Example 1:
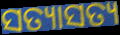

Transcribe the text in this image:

ସତ୍ୟାସତ୍ୟ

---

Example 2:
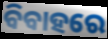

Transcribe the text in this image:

ବିବାହରେ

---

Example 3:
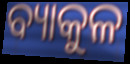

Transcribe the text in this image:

ବ୍ୟାକୁଳ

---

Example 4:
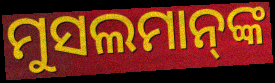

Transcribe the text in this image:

ମୁସଲମାନ୍‍ଙ୍କ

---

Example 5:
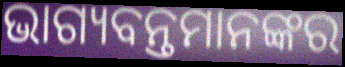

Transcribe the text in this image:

ଭାଗ୍ୟବନ୍ତମାନଙ୍କର